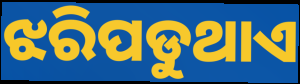
ଝରିପଡୁଥାଏ